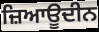
ਜ਼ਿਆਊਦੀਨ